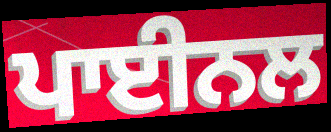
ਪਾਈਨਲ